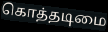
கொத்தடிமை